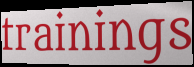
trainings